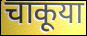
चाकूया